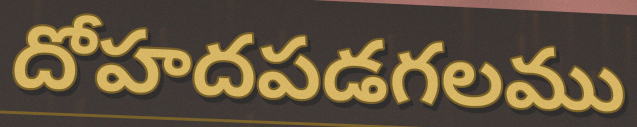
దోహదపడగలము